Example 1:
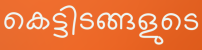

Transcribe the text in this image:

കെട്ടിടങ്ങളുടെ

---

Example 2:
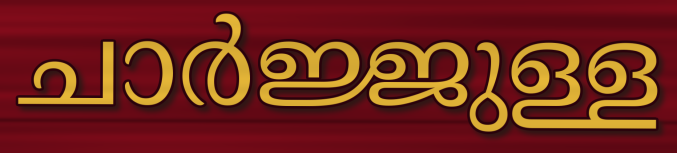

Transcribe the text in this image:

ചാർജ്ജുള്ള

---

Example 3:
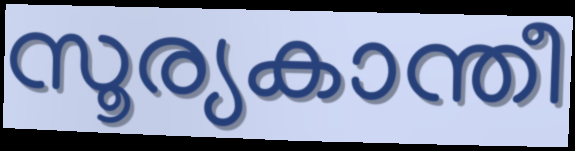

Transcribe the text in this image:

സൂര്യകാന്തീ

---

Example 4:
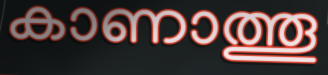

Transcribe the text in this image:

കാണാത്തൂ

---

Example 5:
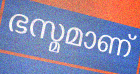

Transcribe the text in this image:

ഭസ്മമാണ്